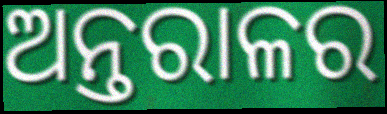
ଅନ୍ତରାଳର